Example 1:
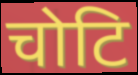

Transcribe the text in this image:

चोटि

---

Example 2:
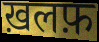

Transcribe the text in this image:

ख़लफ़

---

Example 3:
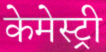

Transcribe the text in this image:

केमेस्ट्री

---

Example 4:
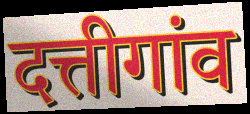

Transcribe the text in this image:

दत्तीगांव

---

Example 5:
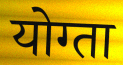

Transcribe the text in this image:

योग्ता